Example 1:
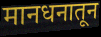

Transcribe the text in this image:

मानधनातून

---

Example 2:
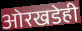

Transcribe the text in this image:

ओरखडेही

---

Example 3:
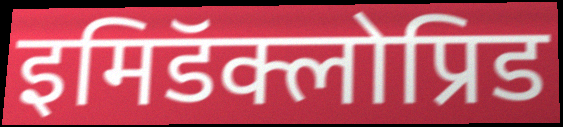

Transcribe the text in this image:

इमिडॅक्लोप्रिड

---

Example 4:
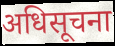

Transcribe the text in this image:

अधिसूचना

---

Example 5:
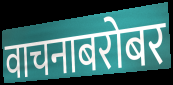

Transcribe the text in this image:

वाचनाबरोबर